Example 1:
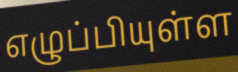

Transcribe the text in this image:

எழுப்பியுள்ள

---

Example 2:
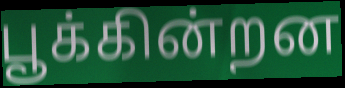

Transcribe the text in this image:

பூக்கின்றன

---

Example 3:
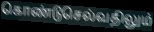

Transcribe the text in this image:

கொண்டுசெல்வதிலும்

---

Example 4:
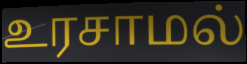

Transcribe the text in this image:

உரசாமல்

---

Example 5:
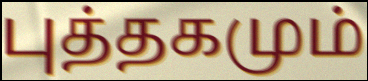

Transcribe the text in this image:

புத்தகமும்